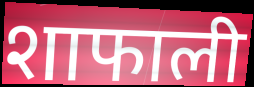
शाफाली